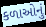
કળાઓનું